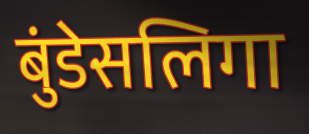
बुंडेसलिगा